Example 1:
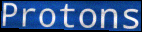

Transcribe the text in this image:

Protons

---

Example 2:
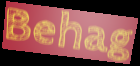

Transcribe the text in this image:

Behag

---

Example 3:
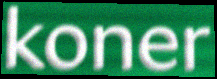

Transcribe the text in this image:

koner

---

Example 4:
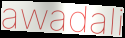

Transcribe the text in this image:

awadali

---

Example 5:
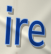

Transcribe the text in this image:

ire